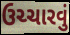
ઉચ્ચારવું